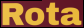
Rota